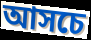
আসচে